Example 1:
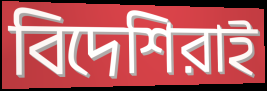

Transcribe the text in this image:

বিদেশিরাই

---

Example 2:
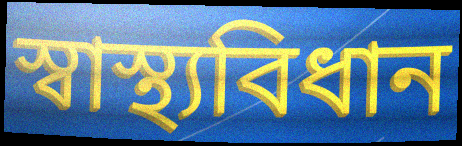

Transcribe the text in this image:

স্বাস্থ্যবিধান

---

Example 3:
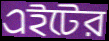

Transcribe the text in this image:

এইটের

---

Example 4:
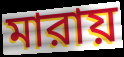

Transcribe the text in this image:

মারায়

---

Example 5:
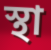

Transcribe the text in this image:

স্থা